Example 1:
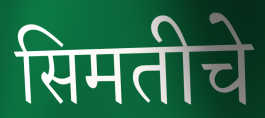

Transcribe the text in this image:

सिमतीचे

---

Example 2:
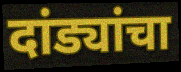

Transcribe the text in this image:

दांड्यांचा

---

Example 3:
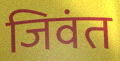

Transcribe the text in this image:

जिवंत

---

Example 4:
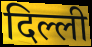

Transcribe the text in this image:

दिल्‍ली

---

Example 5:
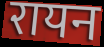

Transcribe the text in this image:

रायन